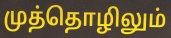
முத்தொழிலும்